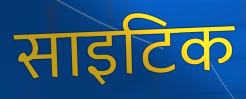
साइटिक